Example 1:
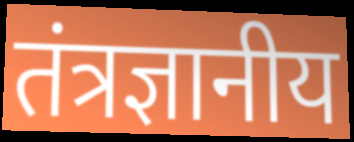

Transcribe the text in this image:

तंत्रज्ञानीय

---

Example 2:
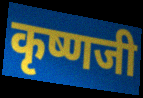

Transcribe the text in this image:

कृष्णजी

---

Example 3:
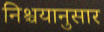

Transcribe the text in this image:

निश्चयानुसार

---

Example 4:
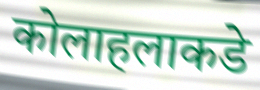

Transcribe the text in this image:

कोलाहलाकडे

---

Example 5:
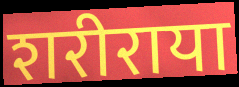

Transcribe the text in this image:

शरीराया